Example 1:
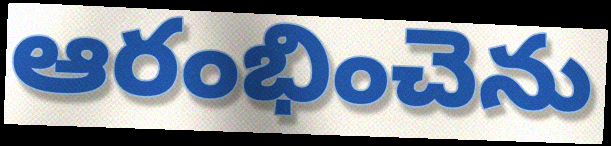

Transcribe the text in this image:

ఆరంభించెను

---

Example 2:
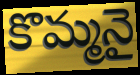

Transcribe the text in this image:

కొమ్మనై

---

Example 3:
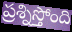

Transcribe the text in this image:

ప్రశ్నిస్తోంది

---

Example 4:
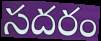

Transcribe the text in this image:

సదరం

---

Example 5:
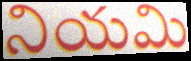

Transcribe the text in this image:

నియమి